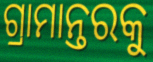
ଗ୍ରାମାନ୍ତରକୁ